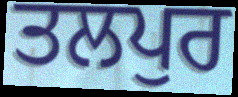
ਤਲਪੁਰ